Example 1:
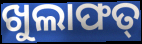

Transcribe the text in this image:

ଖୁଲାଫତ୍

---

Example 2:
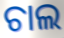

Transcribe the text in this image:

ଚାଲ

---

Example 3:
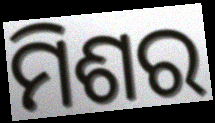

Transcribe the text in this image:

ମିଶର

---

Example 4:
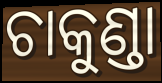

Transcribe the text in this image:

ଚାକୁଣ୍ଡା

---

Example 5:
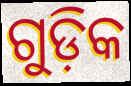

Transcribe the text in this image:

ଗୁଡ଼ିକ